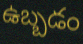
ఉబ్బడం